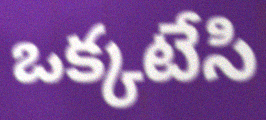
ఒక్కటేసి